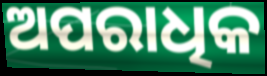
ଅପରାଧିକ